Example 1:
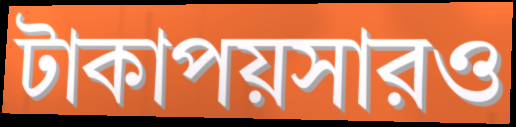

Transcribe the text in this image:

টাকাপয়সারও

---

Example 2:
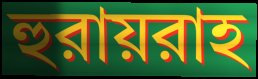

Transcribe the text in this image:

হুরায়রাহ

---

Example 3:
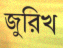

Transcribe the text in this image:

জুরিখ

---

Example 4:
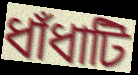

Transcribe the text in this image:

ধাঁধাটি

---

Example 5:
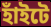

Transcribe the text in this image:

হাঁইটে